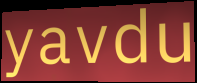
yavdu